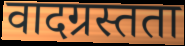
वादग्रस्तता